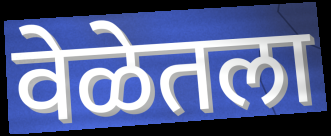
वेळेतला